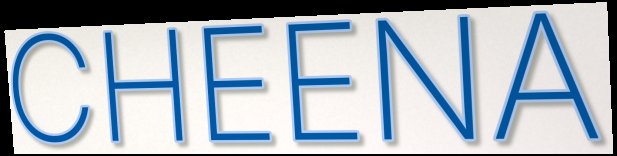
CHEENA